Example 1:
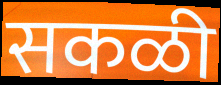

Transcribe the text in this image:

सकळी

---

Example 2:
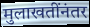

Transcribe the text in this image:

मुलाखतींनंतर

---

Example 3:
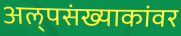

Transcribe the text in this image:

अल्पसंख्याकांवर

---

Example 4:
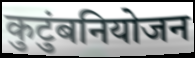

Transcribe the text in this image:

कुटुंबनियोजन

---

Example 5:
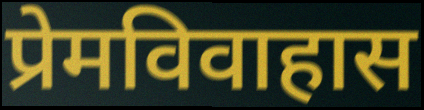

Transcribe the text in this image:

प्रेमविवाहास